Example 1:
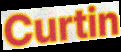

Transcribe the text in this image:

Curtin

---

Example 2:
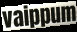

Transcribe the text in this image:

vaippum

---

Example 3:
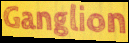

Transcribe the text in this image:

Ganglion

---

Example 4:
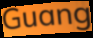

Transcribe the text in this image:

Guang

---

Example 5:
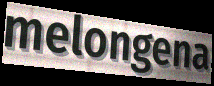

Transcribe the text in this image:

melongena